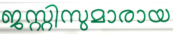
ജസ്റ്റിസുമാരായ